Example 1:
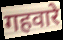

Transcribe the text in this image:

गहवारे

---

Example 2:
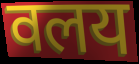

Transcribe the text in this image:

वलय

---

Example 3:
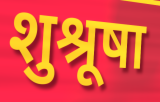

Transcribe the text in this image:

शुश्रूषा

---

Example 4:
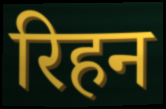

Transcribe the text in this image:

रिहन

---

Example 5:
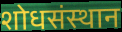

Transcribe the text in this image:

शोधसंस्थान